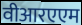
वीआरएएम